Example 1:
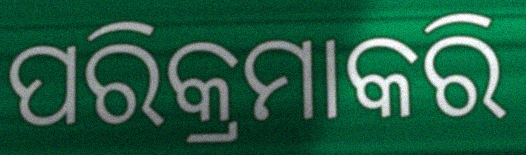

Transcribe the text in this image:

ପରିକ୍ରମାକରି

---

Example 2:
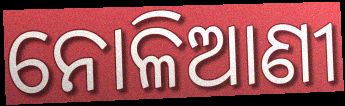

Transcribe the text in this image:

ନୋଳିଆଣୀ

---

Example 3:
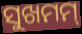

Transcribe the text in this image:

ସୁଖମମ୍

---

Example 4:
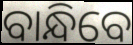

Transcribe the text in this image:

ବାନ୍ଧିବେ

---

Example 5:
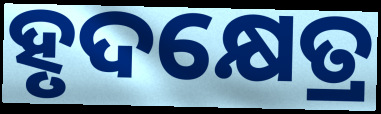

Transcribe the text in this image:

ହୃଦକ୍ଷେତ୍ର